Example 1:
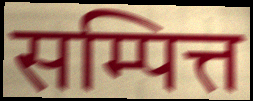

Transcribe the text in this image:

सम्पित्त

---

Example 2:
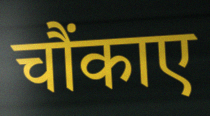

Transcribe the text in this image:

चौंकाए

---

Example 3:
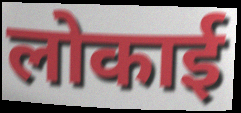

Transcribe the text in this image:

लोकाई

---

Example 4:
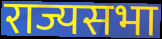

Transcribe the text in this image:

राज्‍यसभा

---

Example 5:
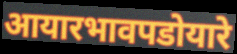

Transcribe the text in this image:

आयारभावपडोयारे